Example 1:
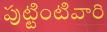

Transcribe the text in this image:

పుట్టింటివారి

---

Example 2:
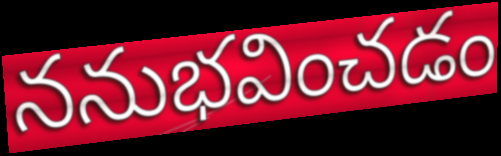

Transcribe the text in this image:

ననుభవించడం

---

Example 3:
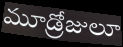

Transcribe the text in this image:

మూడ్రోజులూ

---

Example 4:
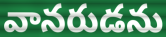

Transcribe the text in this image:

వానరుడను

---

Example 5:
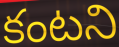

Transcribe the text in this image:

కంటని